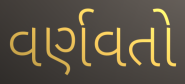
વર્ણવતો